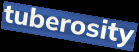
tuberosity